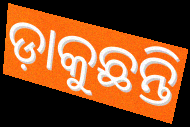
ଡ଼ାକୁଛନ୍ତି